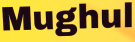
Mughul